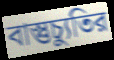
বাস্তুচ্যুতির